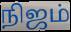
நிஜம்